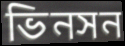
ভিনসন